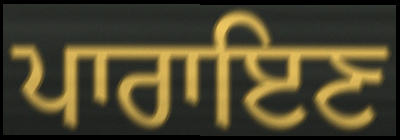
ਪਾਰਾਇਣ